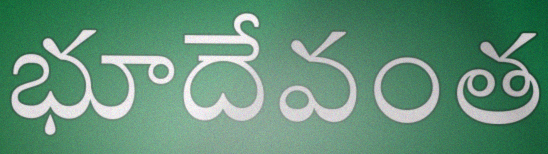
భూదేవంత